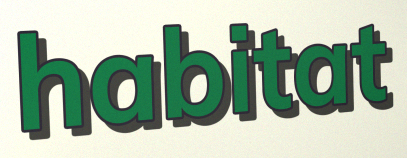
habitat